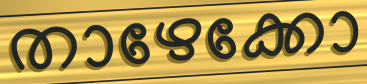
താഴേക്കോ